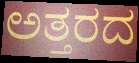
ಅತ್ತರದ